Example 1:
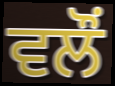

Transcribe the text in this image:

ਵਲੌੰ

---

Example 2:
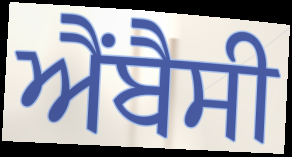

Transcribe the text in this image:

ਐਂਬੈਸੀ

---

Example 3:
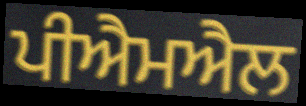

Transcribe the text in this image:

ਪੀਐਮਐਲ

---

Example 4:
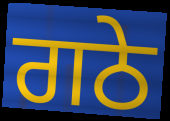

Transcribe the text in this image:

ਗਠੇ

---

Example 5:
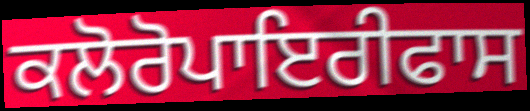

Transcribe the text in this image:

ਕਲੋਰੋਪਾਇਰੀਫਾਸ